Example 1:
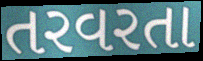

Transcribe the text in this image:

તરવરતા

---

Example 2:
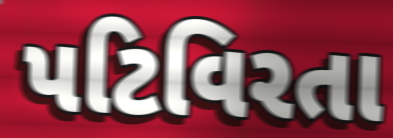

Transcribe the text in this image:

પટિવિરતા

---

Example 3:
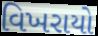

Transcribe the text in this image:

વિખરાયો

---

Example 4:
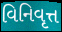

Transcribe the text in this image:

વિનિવૃત્ત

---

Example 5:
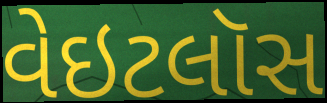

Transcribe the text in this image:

વેઇટલૉસ